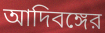
আদিবঙ্গের